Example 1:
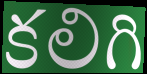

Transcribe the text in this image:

కలిగి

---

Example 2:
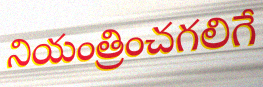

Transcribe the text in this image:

నియంత్రించగలిగే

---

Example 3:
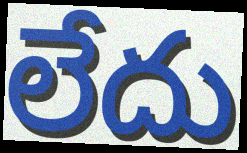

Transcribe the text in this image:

లేదు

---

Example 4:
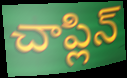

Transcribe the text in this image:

చాప్లిన్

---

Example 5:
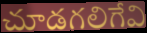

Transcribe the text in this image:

చూడగలిగేవి